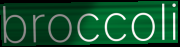
broccoli